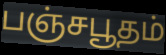
பஞ்சபூதம்